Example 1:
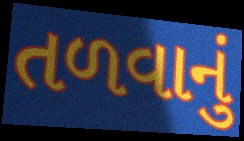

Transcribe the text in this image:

તળવાનું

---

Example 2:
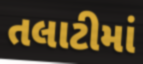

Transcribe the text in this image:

તલાટીમાં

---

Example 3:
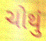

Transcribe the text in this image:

ચોથું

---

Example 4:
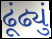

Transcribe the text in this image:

ઢૂંઢ્યું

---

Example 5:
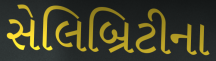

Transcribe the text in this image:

સેલિબ્રિટીના